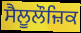
ਸੈਲੂਲੌਜ਼ਿਕ